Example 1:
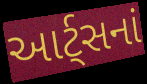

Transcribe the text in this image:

આર્ટ્સનાં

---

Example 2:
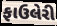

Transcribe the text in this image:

ફાઉલેરી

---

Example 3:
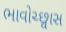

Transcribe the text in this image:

ભાવોચ્છ્વાસ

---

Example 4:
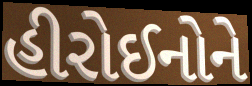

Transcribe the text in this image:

હીરોઈનોને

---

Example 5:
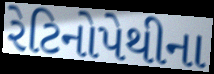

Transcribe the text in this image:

રેટિનોપેથીના